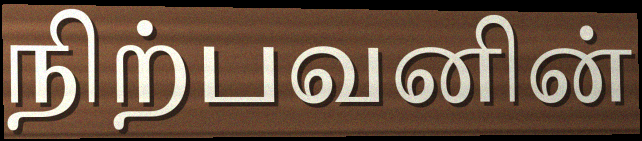
நிற்பவனின்